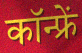
कॉन्फ्रें